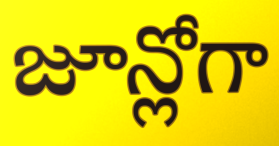
జూన్లోగా